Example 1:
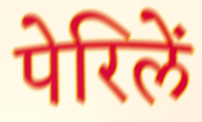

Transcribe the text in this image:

पेरिलें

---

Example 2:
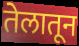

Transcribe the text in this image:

तेलातून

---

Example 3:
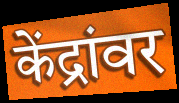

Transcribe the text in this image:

केंद्रांवर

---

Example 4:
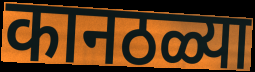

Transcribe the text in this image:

कानठळ्या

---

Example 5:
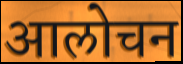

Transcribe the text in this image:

आलोचन